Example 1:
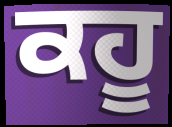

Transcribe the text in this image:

ਕਹੂ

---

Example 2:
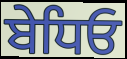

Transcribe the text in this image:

ਬੇਧਿਓ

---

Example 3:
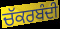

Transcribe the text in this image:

ਚੱਕਰਬੰਦੀ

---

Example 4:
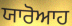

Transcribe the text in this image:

ਯਾਰੋਆਹ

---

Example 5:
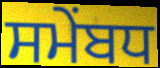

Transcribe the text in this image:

ਸਮੇਂਬਧ